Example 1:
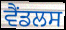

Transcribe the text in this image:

ਵੈਂਡਲਸ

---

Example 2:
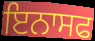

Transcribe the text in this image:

ਇਨਾਸਫ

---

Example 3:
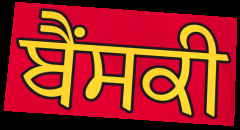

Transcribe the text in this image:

ਬੈਂਸਕੀ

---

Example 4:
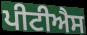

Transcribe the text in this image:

ਪੀਟੀਐਸ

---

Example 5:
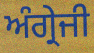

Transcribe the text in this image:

ਅੰਗ੍ਰੇਜੀ